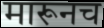
मारूनच